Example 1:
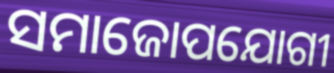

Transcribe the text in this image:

ସମାଜୋପଯୋଗୀ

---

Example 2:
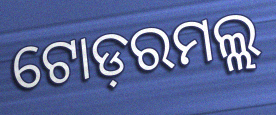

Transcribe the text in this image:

ଟୋଡ଼ରମଲ୍ଲ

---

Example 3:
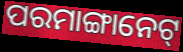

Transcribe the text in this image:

ପରମାଙ୍ଗାନେଟ୍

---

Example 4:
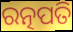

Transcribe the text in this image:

ରତ୍ନପତି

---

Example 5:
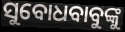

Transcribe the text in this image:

ସୁବୋଧବାବୁଙ୍କୁ